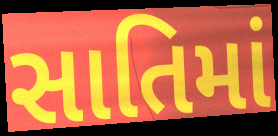
સાતિમાં